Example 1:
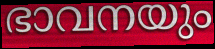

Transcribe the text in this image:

ഭാവനയും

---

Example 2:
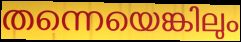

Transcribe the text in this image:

തന്നെയെങ്കിലും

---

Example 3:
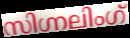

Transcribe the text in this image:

സിഗ്നലിംഗ്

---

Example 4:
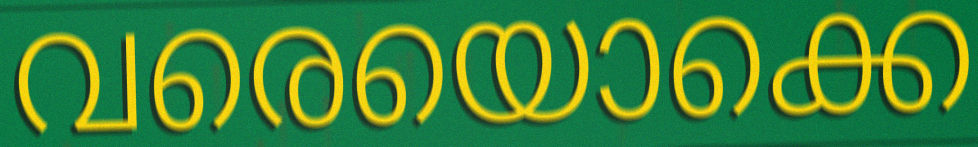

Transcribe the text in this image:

വരെയൊക്കെ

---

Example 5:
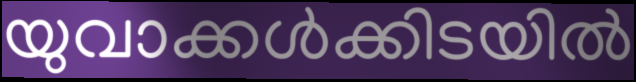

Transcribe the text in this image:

യുവാക്കൾക്കിടയിൽ